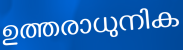
ഉത്തരാധുനിക